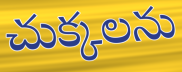
చుక్కలను